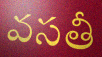
వసతీ